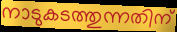
നാടുകടത്തുന്നതിന്